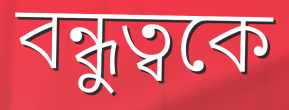
বন্ধুত্বকে